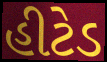
હીટેડ